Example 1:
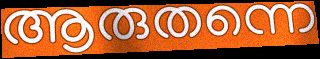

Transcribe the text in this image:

ആരുതന്നെ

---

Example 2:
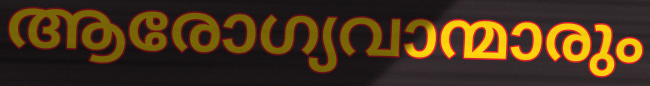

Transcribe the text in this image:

ആരോഗ്യവാന്മാരും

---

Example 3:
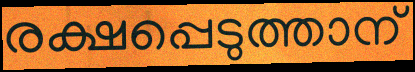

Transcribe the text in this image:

രക്ഷപ്പെടുത്താന്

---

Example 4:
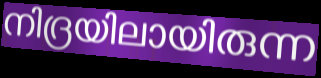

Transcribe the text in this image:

നിദ്രയിലായിരുന്ന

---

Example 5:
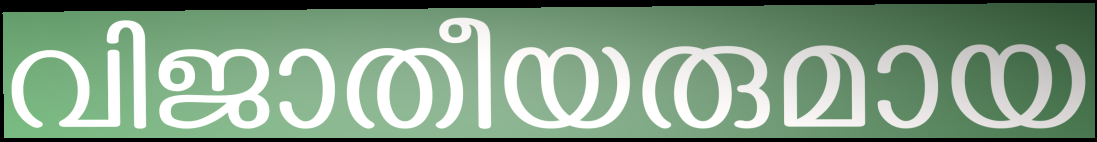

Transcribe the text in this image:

വിജാതീയരുമായ